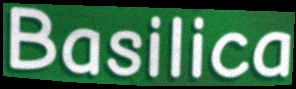
Basilica